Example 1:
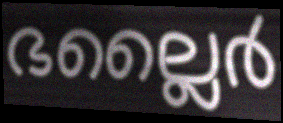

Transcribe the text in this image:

ഭല്ലൈർ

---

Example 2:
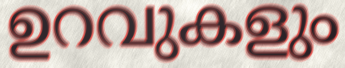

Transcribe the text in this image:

ഉറവുകളും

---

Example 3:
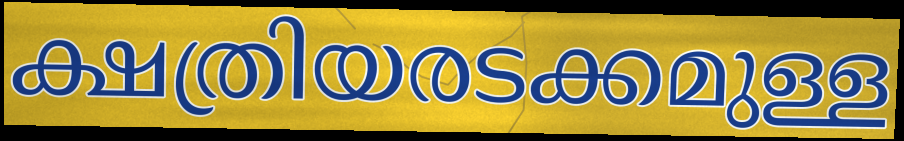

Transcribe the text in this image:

ക്ഷത്രിയരടക്കമുള്ള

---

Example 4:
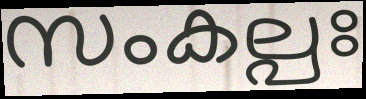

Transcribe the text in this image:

സംകല്പഃ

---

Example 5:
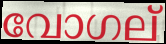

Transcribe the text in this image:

വോഗല്